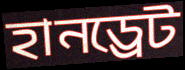
হানড্রেট